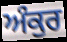
ਅੰਕੁਰ